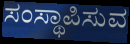
ಸಂಸ್ಥಾಪಿಸುವ